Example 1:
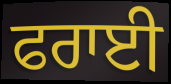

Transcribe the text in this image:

ਫਰਾਈ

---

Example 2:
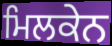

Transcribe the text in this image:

ਮਿਲਕੇਨ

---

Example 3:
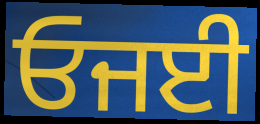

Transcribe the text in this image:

ਓਜਈ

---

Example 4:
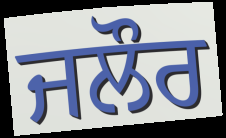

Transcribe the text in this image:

ਜਲੌਰ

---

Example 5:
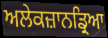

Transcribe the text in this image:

ਅਲੇਕਜ਼ਾਨਡ੍ਰਿਆ